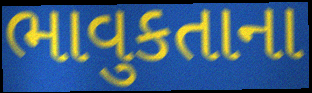
ભાવુકતાના